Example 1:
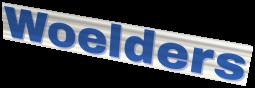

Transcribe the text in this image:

Woelders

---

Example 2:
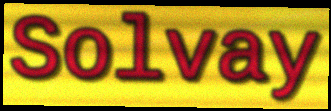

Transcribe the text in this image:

Solvay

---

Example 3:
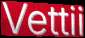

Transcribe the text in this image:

Vettii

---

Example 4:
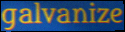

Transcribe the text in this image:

galvanize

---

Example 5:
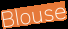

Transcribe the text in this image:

Blouse